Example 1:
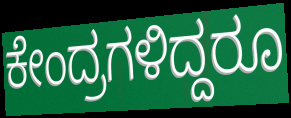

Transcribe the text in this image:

ಕೇಂದ್ರಗಳಿದ್ದರೂ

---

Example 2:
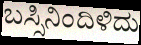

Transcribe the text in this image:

ಬಸ್ಸಿನಿಂದಿಳಿದು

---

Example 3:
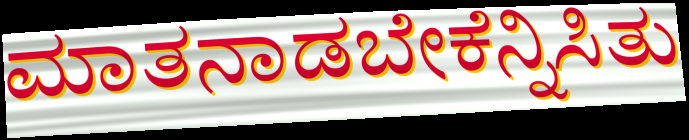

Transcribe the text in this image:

ಮಾತನಾಡಬೇಕೆನ್ನಿಸಿತು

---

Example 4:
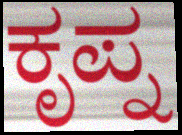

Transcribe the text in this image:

ಕೃಪ್ನ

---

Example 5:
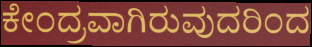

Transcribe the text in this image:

ಕೇಂದ್ರವಾಗಿರುವುದರಿಂದ